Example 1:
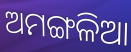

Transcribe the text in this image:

ଅମଙ୍ଗଳିଆ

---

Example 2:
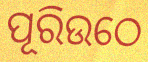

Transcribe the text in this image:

ପୂରିଉଠେ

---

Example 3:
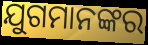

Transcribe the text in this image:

ଯୁଗମାନଙ୍କର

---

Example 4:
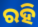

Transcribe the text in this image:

ରହି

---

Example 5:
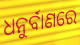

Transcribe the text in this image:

ଧନୁର୍ବାଣରେ